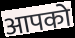
आपको